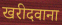
खरीदवाना